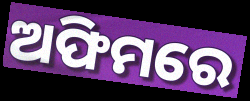
ଅଫିମରେ